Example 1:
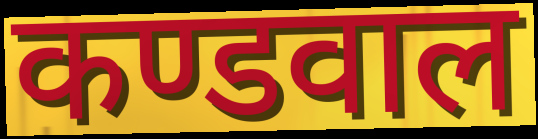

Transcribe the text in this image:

कण्डवाल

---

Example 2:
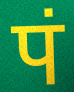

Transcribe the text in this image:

पं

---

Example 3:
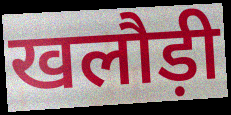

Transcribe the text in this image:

खलौड़ी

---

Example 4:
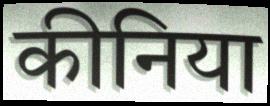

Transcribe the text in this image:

कीनिया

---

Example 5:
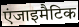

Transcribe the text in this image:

एंजाइमैटिक